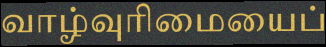
வாழ்வுரிமையைப்